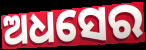
ଅଧସେର